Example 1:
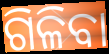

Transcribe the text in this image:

ଗିଳିବା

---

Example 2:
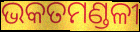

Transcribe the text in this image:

ଭକତମଣ୍ଡଳୀ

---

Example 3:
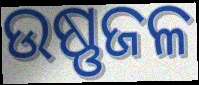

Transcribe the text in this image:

ଉଷ୍ଣଜଳ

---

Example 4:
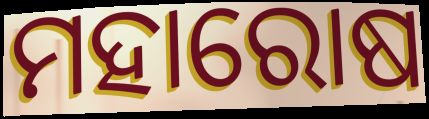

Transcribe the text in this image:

ମହାରୋଷ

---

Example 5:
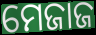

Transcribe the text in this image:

ମେଜାଜ